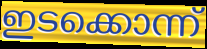
ഇടക്കൊന്ന്